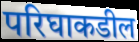
परिघाकडील